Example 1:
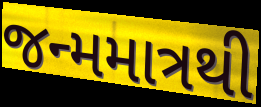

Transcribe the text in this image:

જન્મમાત્રથી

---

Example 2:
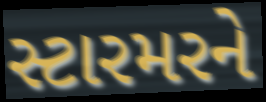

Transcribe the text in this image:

સ્ટારમરને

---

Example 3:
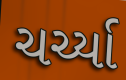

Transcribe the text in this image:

ચર્ચ્યા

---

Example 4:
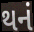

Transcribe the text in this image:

થનં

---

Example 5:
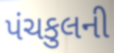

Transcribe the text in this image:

પંચકુલની